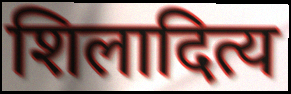
शिलादित्य